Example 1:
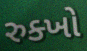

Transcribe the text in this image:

રુક્ખો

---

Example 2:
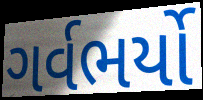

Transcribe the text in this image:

ગર્વભર્યો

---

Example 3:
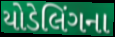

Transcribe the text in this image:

યોડેલિંગના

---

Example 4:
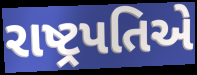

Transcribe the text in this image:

રાષ્ટ્રપતિએ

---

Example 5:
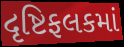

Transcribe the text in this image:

દૃષ્ટિફલકમાં